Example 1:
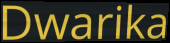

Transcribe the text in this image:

Dwarika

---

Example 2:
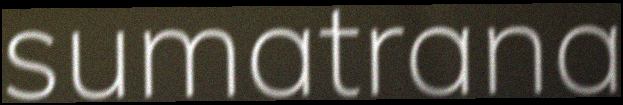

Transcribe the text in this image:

sumatrana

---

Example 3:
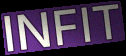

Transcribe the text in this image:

INFIT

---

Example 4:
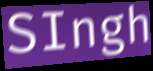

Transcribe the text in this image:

SIngh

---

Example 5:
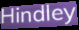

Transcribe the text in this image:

Hindley